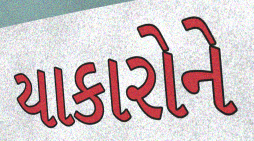
યાકારોને